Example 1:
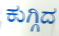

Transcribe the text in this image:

ಕುಗ್ಗಿದ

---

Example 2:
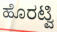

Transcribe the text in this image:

ಹೊರಟ್ವಿ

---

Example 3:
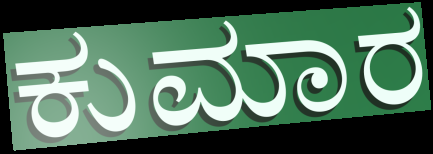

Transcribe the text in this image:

ಕುಮಾರ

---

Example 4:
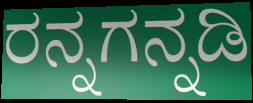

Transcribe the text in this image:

ರನ್ನಗನ್ನಡಿ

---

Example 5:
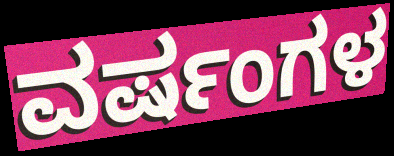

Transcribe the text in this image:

ವರ್ಷಂಗಳ